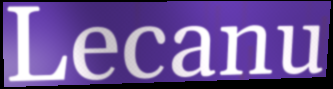
Lecanu